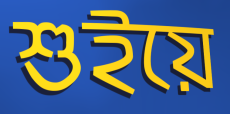
শুইয়ে